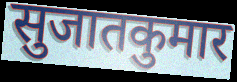
सुजातकुमार